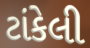
ટાંકેલી